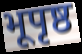
भूपृष्ठ